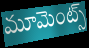
మూమెంట్స్